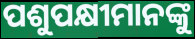
ପଶୁପକ୍ଷୀମାନଙ୍କୁ